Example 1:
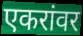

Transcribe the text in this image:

एकरांवर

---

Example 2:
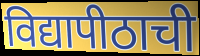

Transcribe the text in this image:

विद्यापीठाची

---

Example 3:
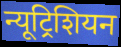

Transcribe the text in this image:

न्यूट्रिशियन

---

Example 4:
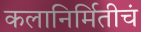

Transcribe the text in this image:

कलानिर्मितीचं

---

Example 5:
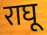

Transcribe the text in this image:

राघू